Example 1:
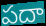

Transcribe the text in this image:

పదా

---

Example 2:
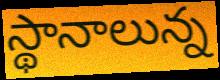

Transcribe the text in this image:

స్థానాలున్న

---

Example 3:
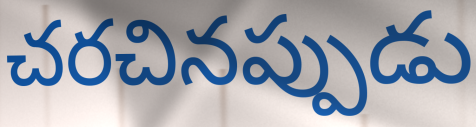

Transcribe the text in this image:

చరచినప్పుడు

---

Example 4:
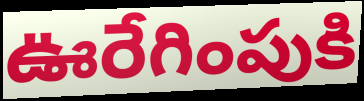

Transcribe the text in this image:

ఊరేగింపుకి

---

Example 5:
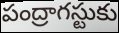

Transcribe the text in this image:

పంద్రాగస్టుకు